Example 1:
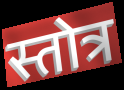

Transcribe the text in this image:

स्तोत्र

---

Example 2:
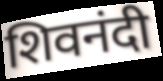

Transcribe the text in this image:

शिवनंदी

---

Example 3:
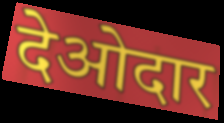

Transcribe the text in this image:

देओदार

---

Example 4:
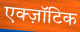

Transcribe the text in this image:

एक्ज़ॉटिक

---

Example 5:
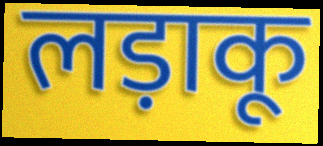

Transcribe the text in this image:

लड़ाकू